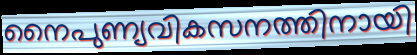
നൈപുണ്യവികസനത്തിനായി